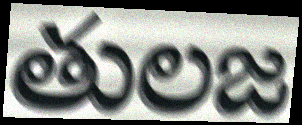
తులజ